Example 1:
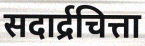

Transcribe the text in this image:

सदार्द्रचित्ता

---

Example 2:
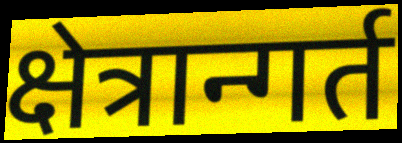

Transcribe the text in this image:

क्षेत्रान्गर्त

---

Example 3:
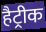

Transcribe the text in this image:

हैट्रीक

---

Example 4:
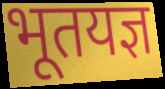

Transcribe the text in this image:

भूतयज्ञ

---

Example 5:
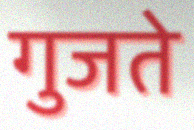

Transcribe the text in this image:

गुजते